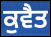
ਕੁਵੈਤ